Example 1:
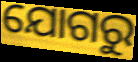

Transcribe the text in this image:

ଯୋଗରୁ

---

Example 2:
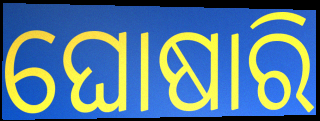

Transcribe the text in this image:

ଘୋଷାରି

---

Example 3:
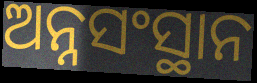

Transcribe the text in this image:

ଅନ୍ନସଂସ୍ଥାନ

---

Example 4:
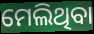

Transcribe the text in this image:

ମେଲିଥିବା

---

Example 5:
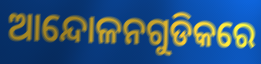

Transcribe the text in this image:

ଆନ୍ଦୋଳନଗୁଡିକରେ